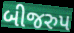
બીજરુપ